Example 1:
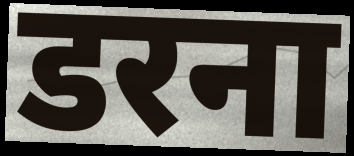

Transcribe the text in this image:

डरना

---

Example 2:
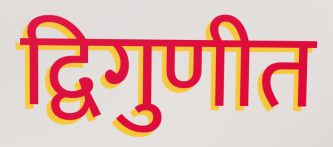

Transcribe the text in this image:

द्विगुणीत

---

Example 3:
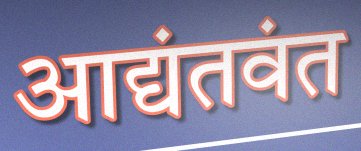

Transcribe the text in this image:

आद्यंतवंत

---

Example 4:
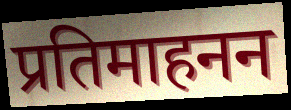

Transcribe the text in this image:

प्रतिमाहनन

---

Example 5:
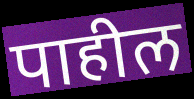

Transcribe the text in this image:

पाहील